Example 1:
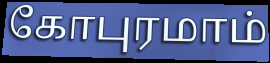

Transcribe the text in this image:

கோபுரமாம்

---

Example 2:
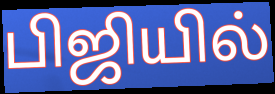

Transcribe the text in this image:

பிஜியில்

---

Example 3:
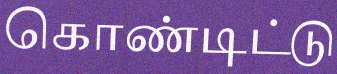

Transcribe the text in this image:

கொண்டிட்டு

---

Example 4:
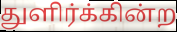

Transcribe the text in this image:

துளிர்க்கின்ற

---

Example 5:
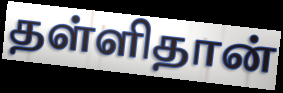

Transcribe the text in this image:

தள்ளிதான்